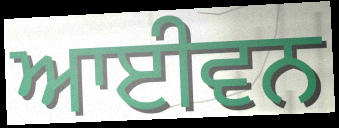
ਆਈਵਨ